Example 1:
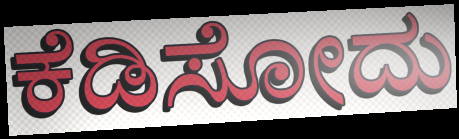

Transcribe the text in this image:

ಕೆಡಿಸೋದು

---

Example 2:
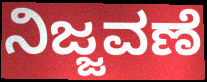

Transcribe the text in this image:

ನಿಜ್ಜವಣೆ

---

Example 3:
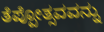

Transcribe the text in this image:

ತೆಪ್ಪೋತ್ಸವವನ್ನು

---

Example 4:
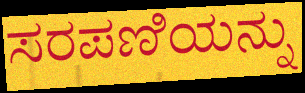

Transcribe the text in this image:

ಸರಪಣಿಯನ್ನು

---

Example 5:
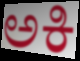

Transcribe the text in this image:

ಅಕಿ